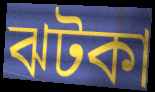
ঝটকা